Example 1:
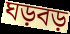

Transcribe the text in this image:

ঘড়বড়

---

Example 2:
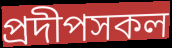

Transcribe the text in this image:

প্রদীপসকল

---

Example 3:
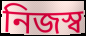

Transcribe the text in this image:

নিজস্ব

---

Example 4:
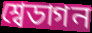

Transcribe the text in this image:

শ্বেডাগন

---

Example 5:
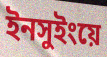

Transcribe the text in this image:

ইনসুইংয়ে